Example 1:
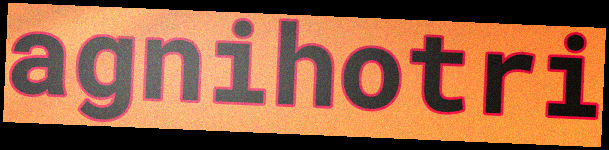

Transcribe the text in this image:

agnihotri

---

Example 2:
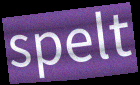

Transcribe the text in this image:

spelt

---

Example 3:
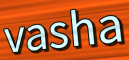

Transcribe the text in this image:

vasha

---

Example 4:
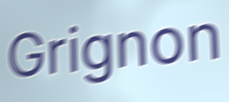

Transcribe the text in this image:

Grignon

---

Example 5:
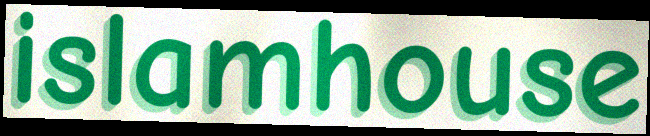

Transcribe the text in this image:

islamhouse